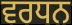
ਵਰਧਨ